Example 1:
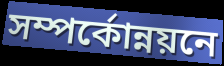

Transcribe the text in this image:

সম্পর্কোন্নয়নে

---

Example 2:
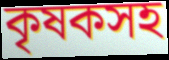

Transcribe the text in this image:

কৃষকসহ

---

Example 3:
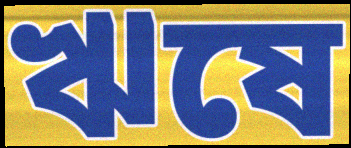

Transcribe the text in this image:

ঋষে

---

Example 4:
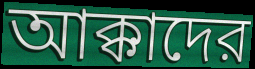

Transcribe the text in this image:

আক্কাদের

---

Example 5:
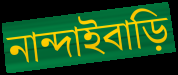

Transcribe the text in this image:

নান্দাইবাড়ি